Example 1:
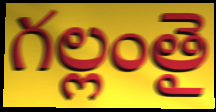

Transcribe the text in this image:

గల్లంతై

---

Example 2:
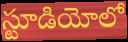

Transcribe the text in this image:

స్టూడియోలో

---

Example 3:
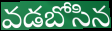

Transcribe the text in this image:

వడబోసిన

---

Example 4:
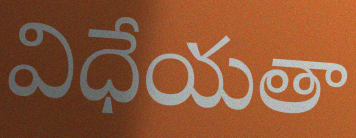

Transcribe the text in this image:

విధేయతా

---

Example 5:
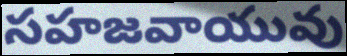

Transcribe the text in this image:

సహజవాయువు